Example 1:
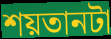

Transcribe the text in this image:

শয়তানটা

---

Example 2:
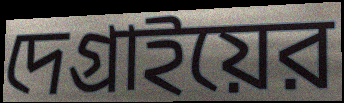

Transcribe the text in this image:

দেগ্রাইয়ের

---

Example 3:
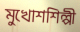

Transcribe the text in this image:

মুখোশশিল্পী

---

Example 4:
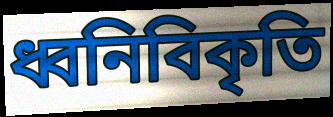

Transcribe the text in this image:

ধ্বনিবিকৃতি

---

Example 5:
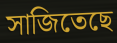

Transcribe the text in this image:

সাজিতেছে